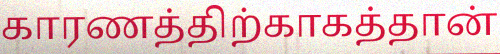
காரணத்திற்காகத்தான்